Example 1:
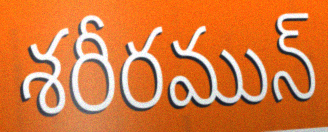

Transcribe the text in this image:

శరీరమున్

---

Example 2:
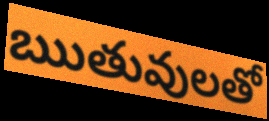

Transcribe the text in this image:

ఋతువులతో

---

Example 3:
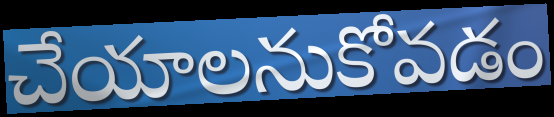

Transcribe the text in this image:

చేయాలనుకోవడం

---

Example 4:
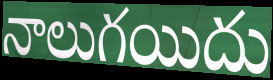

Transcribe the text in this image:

నాలుగయిదు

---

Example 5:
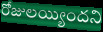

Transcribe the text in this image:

రోజులయ్యిందని